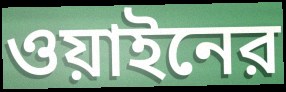
ওয়াইনের